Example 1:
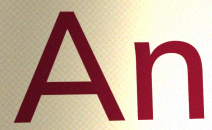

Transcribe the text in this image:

An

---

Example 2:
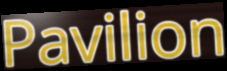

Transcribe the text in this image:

Pavilion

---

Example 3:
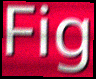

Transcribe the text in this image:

Fig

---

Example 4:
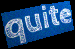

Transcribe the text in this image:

quite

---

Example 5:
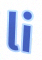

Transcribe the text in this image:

li